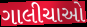
ગાલીચાઓ